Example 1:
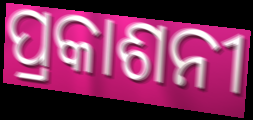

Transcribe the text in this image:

ପ୍ରକାଶନୀ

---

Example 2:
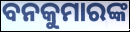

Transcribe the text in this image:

ବନକୁମାରଙ୍କ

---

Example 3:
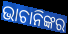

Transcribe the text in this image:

ଭାଚାନିଙ୍କର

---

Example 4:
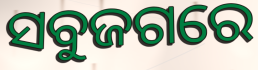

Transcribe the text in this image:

ସବୁଜଗରେ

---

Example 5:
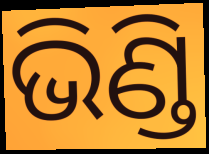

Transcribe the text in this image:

ଭିଣ୍ଡି